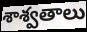
శాశ్వతాలు